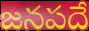
జనపదే